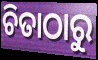
ଚିତାଠାରୁ